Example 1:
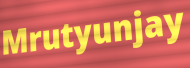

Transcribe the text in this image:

Mrutyunjay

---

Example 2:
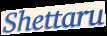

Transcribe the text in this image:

Shettaru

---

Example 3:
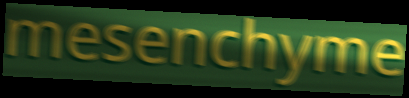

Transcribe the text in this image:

mesenchyme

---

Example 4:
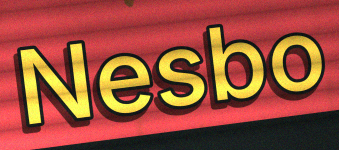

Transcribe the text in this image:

Nesbo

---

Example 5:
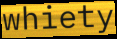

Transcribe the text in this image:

whiety